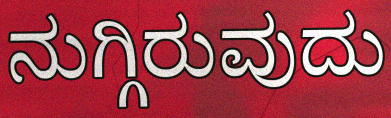
ನುಗ್ಗಿರುವುದು